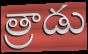
త్రాడు